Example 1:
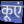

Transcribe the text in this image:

कूएं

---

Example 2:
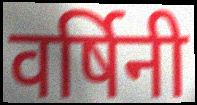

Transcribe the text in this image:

वर्षिनी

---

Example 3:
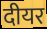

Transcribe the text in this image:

दीयर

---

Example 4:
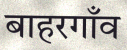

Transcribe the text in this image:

बाहरगाँव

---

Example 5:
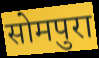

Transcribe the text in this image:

सोमपुरा